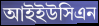
আইইউসিএন